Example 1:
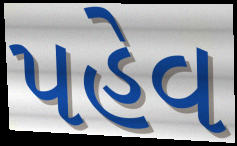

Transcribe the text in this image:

પહેવ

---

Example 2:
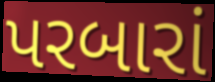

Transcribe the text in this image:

પરબારાં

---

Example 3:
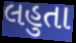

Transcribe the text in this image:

લહુતા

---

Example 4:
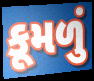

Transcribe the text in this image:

કૂમળું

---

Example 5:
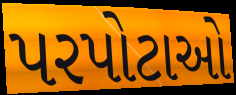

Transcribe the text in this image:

પરપોટાઓ